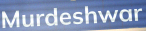
Murdeshwar